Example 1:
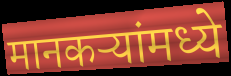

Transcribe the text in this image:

मानकऱ्यांमध्ये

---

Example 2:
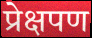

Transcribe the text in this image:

प्रेक्षपण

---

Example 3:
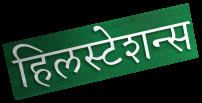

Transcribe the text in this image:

हिलस्टेशन्स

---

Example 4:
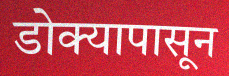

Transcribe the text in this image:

डोक्यापासून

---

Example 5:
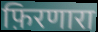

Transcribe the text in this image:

फ़िरणारा